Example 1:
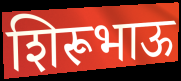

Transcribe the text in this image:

शिरूभाऊ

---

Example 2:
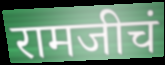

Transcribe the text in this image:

रामजीचं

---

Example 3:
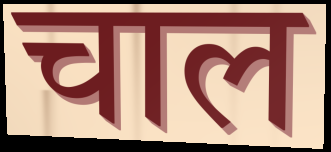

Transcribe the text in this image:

चाल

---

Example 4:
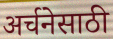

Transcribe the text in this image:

अर्चनेसाठी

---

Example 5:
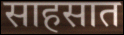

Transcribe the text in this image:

साहसात